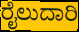
ರೈಲುದಾರಿ